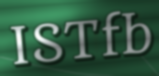
ISTfb